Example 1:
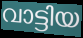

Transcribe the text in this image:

വാട്ടിയ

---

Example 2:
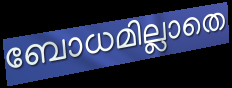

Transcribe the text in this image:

ബോധമില്ലാതെ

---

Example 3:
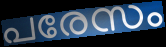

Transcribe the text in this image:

പരേസം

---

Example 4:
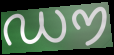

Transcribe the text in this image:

ഡൗ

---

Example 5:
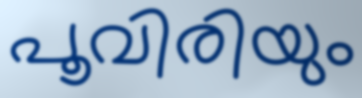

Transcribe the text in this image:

പൂവിരിയും